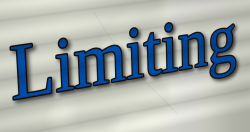
Limiting